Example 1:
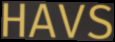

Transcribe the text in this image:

HAVS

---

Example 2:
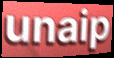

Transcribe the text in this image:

unaip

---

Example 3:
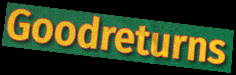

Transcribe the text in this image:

Goodreturns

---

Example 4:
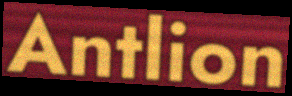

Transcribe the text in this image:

Antlion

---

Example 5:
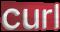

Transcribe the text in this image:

curl